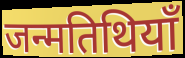
जन्मतिथियाँ